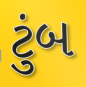
ટુંબ